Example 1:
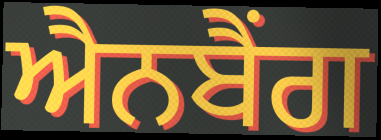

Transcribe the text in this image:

ਐਨਬੈਂਗ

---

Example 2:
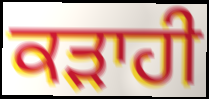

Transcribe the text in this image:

ਕੜਾਹੀ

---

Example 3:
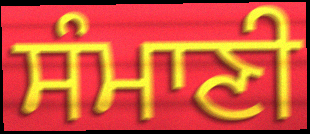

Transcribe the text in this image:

ਸੰਮਾਣੀ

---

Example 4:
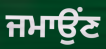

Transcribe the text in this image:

ਜਮਾਉਂਣ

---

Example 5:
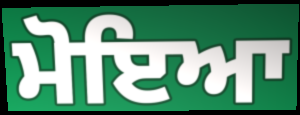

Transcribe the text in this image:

ਮੋਇਆ